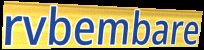
rvbembare